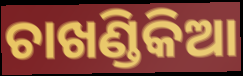
ଚାଖଣ୍ଡିକିଆ